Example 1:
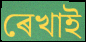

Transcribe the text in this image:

ৰেখাই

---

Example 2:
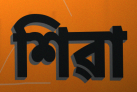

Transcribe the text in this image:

শিৱা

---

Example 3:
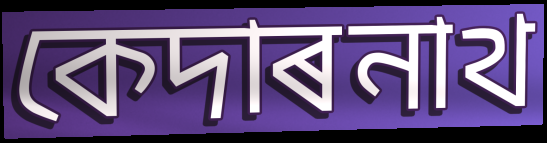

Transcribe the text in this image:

কেদাৰনাথ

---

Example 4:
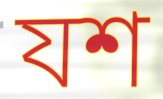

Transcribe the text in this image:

যশ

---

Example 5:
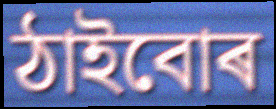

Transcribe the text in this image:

ঠাইবোৰ